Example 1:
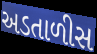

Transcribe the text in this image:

અડતાળીસ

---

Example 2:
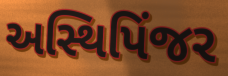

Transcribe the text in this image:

અસ્થિપિંજર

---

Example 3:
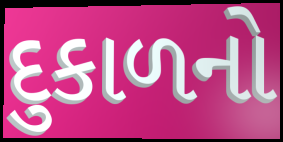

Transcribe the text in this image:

દુકાળનો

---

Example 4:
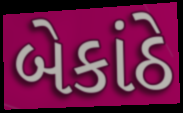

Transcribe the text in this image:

બેકાંઠે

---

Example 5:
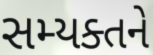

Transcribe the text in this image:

સમ્યક્તને